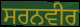
ਸਰਨਵੀਰ